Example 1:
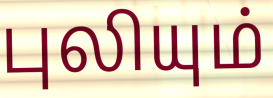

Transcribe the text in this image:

புலியும்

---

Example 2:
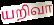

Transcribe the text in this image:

யறிவா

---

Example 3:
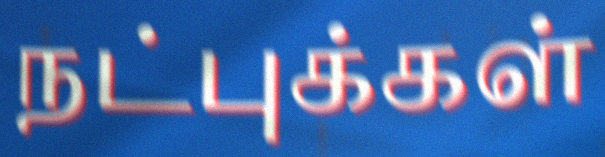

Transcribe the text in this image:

நட்புக்கள்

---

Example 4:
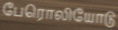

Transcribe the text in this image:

பேரொலியோடு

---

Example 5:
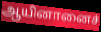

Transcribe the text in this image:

ஆயினானைச்